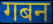
गबन